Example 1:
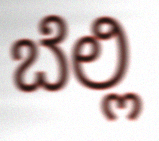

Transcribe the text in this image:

ಬೆಲ್ಲಿ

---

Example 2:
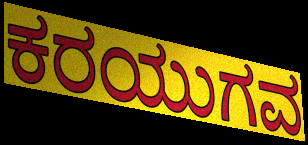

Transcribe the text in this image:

ಕರಯುಗವ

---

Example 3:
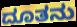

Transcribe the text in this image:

ದೂತನು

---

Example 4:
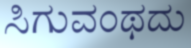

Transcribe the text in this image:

ಸಿಗುವಂಥದು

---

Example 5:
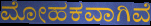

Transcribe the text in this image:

ಮೋಹಕವಾಗಿವೆ